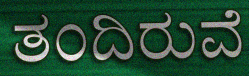
ತಂದಿರುವೆ